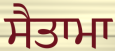
ਸੈਤਾਮਾ